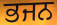
ਭਜਨ